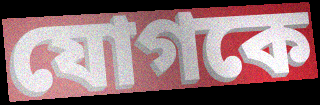
যোগকে